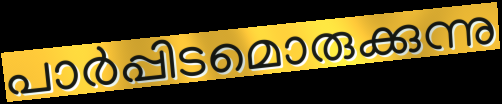
പാർപ്പിടമൊരുക്കുന്നു